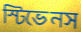
স্টিভেনস